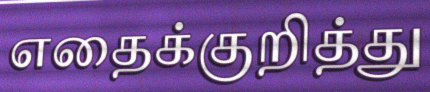
எதைக்குறித்து